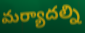
మర్యాదల్ని